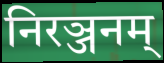
निरञ्जनम्